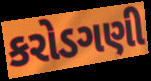
કરોડગણી